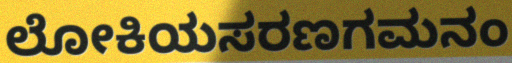
ಲೋಕಿಯಸರಣಗಮನಂ